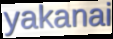
yakanai